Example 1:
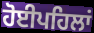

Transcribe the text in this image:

ਹੋਈਪਹਿਲਾਂ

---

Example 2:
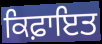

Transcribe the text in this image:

ਕਿਫ਼ਾਇਤ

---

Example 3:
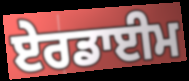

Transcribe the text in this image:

ਏਰਡਾਈਮ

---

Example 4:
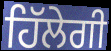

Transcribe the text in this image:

ਹਿੱਲੇਗੀ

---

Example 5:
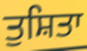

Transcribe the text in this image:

ਤੁਸ਼ਿਤਾ